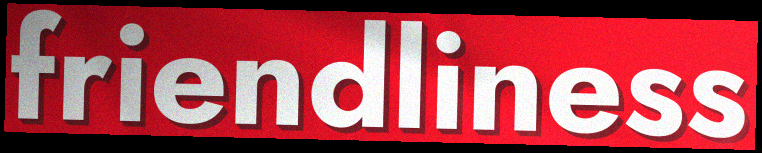
friendliness